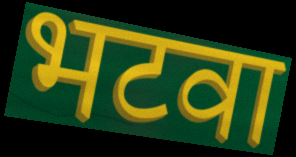
भटवा